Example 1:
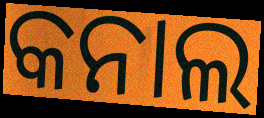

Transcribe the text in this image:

କନାଲ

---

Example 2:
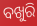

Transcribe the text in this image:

ବଖୁରି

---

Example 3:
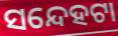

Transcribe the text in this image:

ସନ୍ଦେହଟା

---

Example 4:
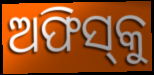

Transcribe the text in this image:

ଅଫିସ୍‌କୁ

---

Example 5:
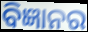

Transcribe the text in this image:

ବିଜ୍ଞାନର